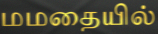
மமதையில்